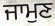
ਜਾਮੁਣ